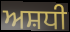
ਅਸ਼ਧੀ